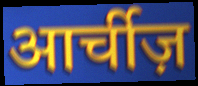
आर्चीज़